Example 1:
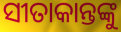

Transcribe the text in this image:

ସୀତାକାନ୍ତଙ୍କୁ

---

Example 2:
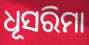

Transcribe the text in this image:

ଧୂସରିମା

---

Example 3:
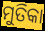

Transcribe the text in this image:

ମୁତିକା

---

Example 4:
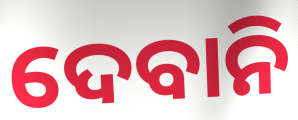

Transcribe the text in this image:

ଦେବାନି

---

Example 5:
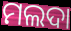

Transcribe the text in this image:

ମଲଦା